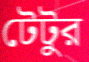
টেটুর